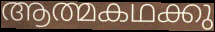
ആത്മകഥക്കു